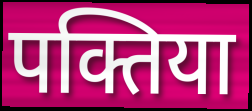
पक्तिया